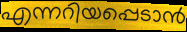
എന്നറിയപ്പെടാൻ